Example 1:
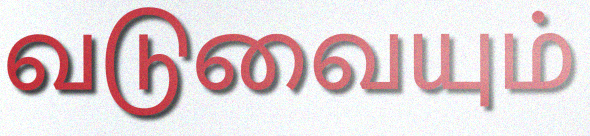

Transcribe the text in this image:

வடுவையும்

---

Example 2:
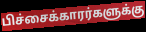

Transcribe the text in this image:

பிச்சைக்காரர்களுக்கு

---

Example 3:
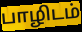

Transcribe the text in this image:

பாழிடம்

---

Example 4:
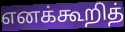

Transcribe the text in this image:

எனக்கூறித்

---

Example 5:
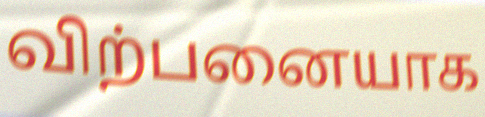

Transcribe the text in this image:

விற்பனையாக